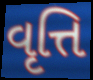
વૃત્તિ